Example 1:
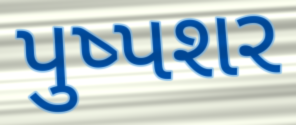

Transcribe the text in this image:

પુષ્પશર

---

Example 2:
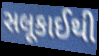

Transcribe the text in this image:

સલૂકાઈથી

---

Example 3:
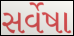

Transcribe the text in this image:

સર્વેષા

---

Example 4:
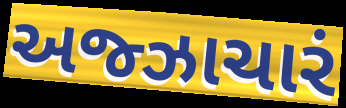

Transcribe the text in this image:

અજ્ઝાચારં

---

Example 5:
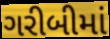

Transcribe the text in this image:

ગરીબીમાં